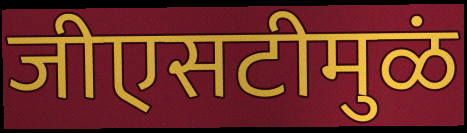
जीएसटीमुळं